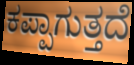
ಕಪ್ಪಾಗುತ್ತದೆ